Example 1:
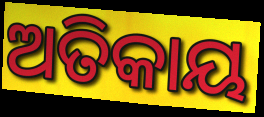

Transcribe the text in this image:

ଅତିକାୟ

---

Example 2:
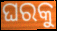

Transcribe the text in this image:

ଘରକୁ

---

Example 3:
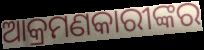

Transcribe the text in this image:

ଆକ୍ରମଣକାରୀଙ୍କର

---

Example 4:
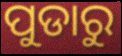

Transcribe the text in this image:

ପୁଡାରୁ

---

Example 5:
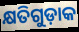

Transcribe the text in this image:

କ୍ଷତିଗୁଡ଼ାକ